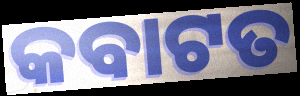
କବାଟତ